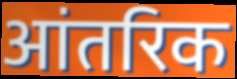
आंतरिक